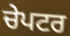
ਚੇਪਟਰ